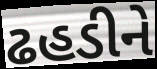
ઢહડીને